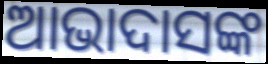
ଆଭାଦାସଙ୍କ